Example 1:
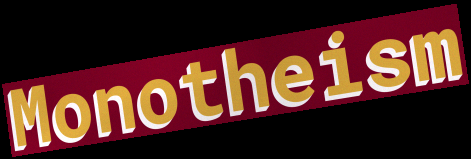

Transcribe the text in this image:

Monotheism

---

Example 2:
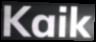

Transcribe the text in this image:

Kaik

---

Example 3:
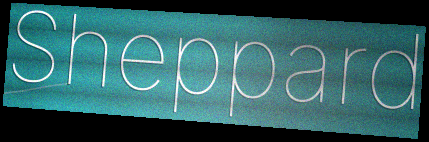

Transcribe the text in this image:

Sheppard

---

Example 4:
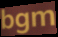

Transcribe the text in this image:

bgm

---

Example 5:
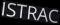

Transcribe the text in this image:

ISTRAC